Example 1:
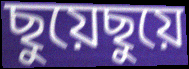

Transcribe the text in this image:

ছুয়েছুয়ে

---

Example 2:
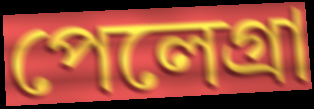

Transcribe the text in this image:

পেলেগ্রা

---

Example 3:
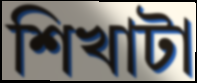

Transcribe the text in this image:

শিখাটা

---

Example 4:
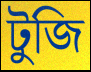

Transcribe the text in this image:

টুজি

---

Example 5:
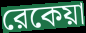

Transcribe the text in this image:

রেকেয়া